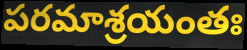
పరమాశ్రయంతః